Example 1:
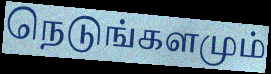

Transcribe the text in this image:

நெடுங்களமும்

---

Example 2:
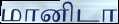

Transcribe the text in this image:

மானிடா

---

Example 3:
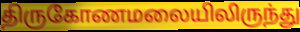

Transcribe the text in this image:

திருகோணமலையிலிருந்து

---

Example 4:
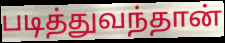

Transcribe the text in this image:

படித்துவந்தான்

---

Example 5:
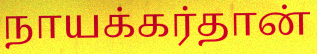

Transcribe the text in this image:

நாயக்கர்தான்